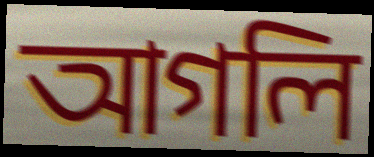
আগলি